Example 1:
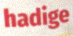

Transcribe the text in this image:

hadige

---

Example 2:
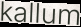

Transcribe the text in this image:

kallum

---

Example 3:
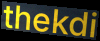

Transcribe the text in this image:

thekdi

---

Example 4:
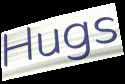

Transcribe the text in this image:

Hugs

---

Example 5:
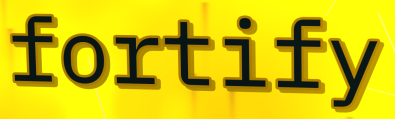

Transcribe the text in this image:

fortify